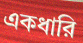
একধারি